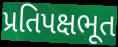
પ્રતિપક્ષભૂત